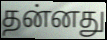
தன்னது